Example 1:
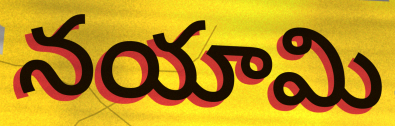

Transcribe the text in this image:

నయామి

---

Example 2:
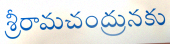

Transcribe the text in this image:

శ్రీరామచంద్రునకు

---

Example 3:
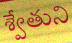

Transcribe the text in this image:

శ్వేతుని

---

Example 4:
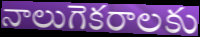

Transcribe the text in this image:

నాలుగెకరాలకు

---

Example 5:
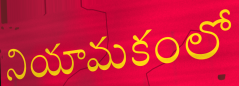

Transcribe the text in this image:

నియామకంలో